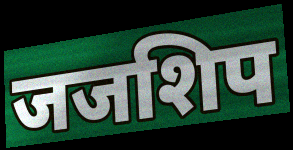
जजशिप